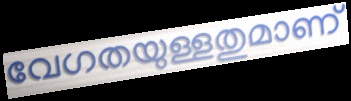
വേഗതയുള്ളതുമാണ്